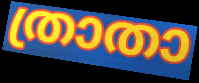
ത്രാതാ